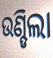
ଉଣ୍ଡିଲା